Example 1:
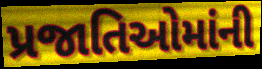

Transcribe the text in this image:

પ્રજાતિઓમાંની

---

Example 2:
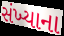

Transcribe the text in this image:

સંખ્યાના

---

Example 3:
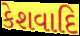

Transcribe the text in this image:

કેશવાદિ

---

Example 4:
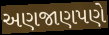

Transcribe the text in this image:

અણજાણપણે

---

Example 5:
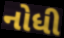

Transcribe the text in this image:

નોધી